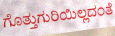
ಗೊತ್ತುಗುರಿಯಿಲ್ಲದಂತೆ